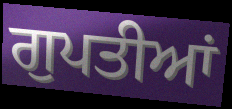
ਗੁਪਤੀਆਂ